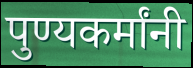
पुण्यकर्मांनी